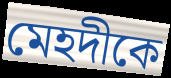
মেহদীকে